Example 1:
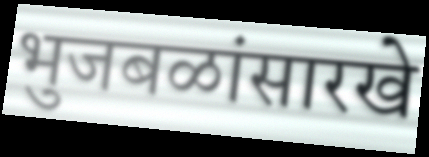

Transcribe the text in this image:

भुजबळांसारखे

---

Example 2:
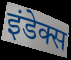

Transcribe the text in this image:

इंडेक्स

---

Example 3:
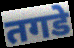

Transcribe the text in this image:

तगडे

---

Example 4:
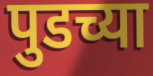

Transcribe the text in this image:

पुडच्या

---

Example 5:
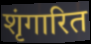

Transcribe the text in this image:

शृंगारित